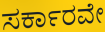
ಸರ್ಕಾರವೇ